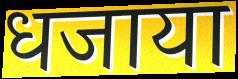
धजाया